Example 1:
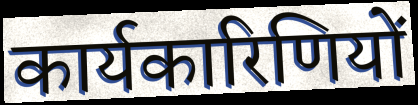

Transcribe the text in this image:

कार्यकारिणियों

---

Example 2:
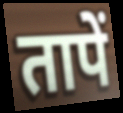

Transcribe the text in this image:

तापें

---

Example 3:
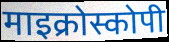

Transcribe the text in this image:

माइक्रोस्कोपी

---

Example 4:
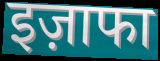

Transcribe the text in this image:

इज़ाफा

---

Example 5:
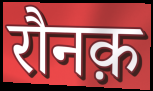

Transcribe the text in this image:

रौनक़